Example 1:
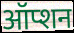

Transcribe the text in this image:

ऑप्‍शन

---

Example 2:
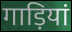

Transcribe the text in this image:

गाड़ियां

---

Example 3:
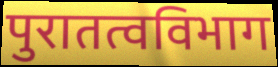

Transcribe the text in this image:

पुरातत्वविभाग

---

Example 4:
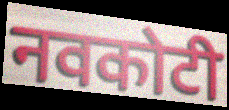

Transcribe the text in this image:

नवकोटी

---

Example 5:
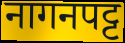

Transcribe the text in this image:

नागनपट्ट